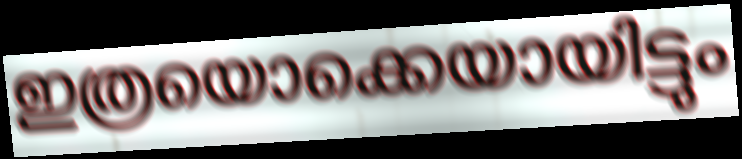
ഇത്രയൊക്കെയായിട്ടും